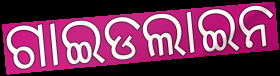
ଗାଇଡଲାଇନ